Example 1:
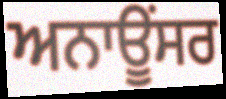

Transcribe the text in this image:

ਅਨਾਊਂਸਰ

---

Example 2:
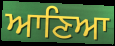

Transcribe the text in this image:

ਆਣਿਆ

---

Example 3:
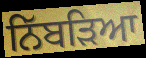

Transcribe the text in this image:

ਨਿੱਬੜਿਆ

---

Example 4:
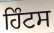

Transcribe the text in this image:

ਹਿੰਟਸ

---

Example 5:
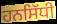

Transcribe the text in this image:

ਹਨਸਿੱਧੀ